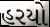
હરયો